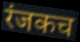
रंजकच